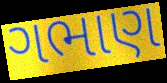
ગભાણ